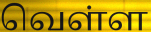
வெள்ள